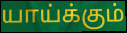
யாய்க்கும்